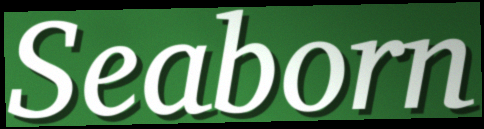
Seaborn